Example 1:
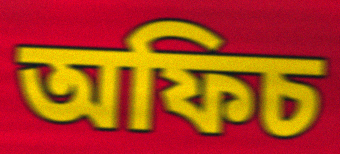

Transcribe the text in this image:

অফিচ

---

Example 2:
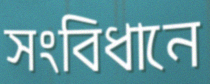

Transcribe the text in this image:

সংবিধানে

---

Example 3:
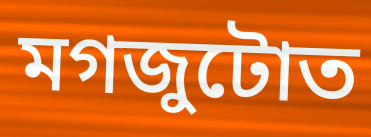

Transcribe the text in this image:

মগজুটোত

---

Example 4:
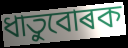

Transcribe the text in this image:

ধাতুবোৰক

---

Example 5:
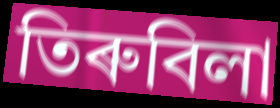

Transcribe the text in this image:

তিৰুবিলা